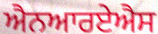
ਐਨਆਰਏਐਸ